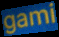
gami